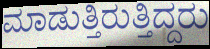
ಮಾಡುತ್ತಿರುತ್ತಿದ್ದರು